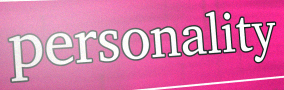
personality